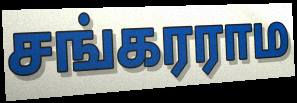
சங்கரராம